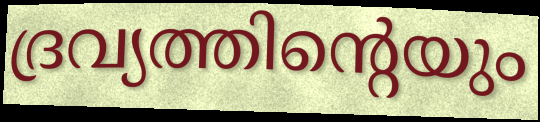
ദ്രവ്യത്തിന്റെയും